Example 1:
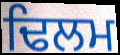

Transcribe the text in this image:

ਢਿਲਮ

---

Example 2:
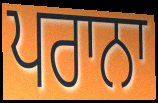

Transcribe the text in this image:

ਪਰਾਨਾ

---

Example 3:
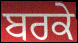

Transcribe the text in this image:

ਬਰਕੇ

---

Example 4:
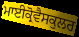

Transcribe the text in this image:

ਮਾਈਕ੍ਰੋਵੈਸਕੁਲਰ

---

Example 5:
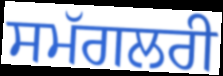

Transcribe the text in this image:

ਸਮੱਗਲਰੀ